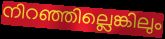
നിറഞ്ഞില്ലെങ്കിലും